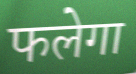
फलेगा